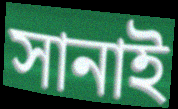
সানাই